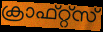
ക്രാഫ്റ്റ്സ്